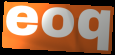
eoq